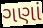
ગણાં